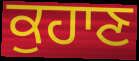
ਕੁਹਾਣ